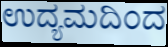
ಉದ್ಯಮದಿಂದ